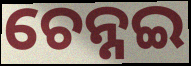
ଚେନ୍ନଇ